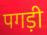
पगड़ी